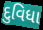
દુવિધા